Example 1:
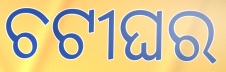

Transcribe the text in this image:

ଚଟୀଘର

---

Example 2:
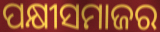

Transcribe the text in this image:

ପକ୍ଷୀସମାଜର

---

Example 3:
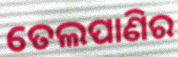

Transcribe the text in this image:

ତେଲପାଣିର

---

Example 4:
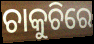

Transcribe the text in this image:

ଚାକୁଚିରେ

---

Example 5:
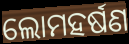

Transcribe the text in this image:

ଲୋମହର୍ଷଣ